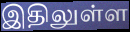
இதிலுள்ள